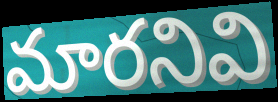
మారనివి